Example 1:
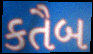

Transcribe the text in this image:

કતૈબ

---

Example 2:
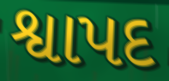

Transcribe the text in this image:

શ્વાપદ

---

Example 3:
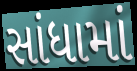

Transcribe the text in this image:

સાંધામાં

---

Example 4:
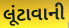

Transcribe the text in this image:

લૂંટાવાની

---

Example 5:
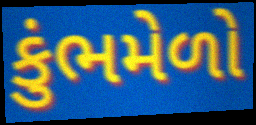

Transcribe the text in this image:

કુંભમેળો